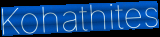
Kohathites